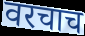
वरचाच